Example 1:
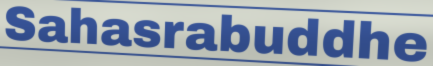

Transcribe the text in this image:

Sahasrabuddhe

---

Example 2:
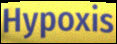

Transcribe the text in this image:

Hypoxis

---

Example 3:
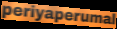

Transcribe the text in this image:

periyaperumal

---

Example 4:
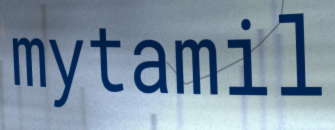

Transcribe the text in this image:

mytamil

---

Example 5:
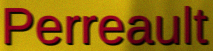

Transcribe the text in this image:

Perreault